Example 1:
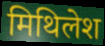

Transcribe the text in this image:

मिथिलेश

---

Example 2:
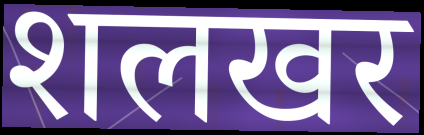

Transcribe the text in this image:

शलखर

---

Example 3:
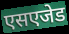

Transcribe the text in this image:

एसएजेड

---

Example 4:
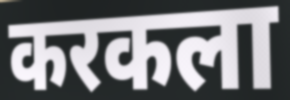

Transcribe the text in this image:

करकला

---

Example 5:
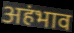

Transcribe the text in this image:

अहंभाव